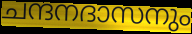
ചന്ദനദാസനും